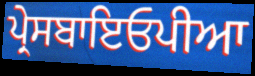
ਪ੍ਰੇਸਬਾਇਓਪੀਆ